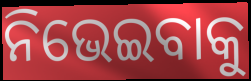
ନିଭେଇବାକୁ